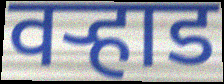
वऱ्हाड